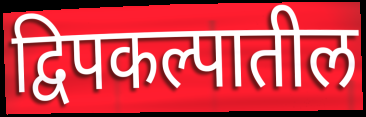
द्विपकल्पातील